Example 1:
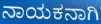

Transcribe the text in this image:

ನಾಯಕನಾಗಿ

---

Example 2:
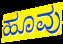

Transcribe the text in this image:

ಹೂವು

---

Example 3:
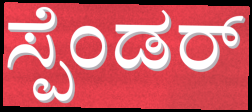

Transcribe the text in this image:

ಸ್ಪೆಂಡರ್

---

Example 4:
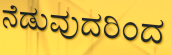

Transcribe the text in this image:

ನೆಡುವುದರಿಂದ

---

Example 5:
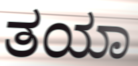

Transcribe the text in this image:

ತಯಾ